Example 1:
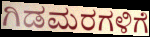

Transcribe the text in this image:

ಗಿಡಮರಗಳಿಗೆ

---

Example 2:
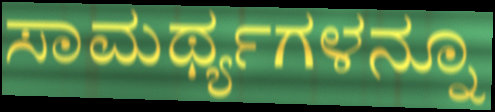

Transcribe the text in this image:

ಸಾಮರ್ಥ್ಯಗಳನ್ನೂ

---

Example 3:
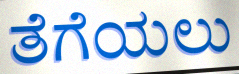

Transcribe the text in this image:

ತೆಗೆಯಲು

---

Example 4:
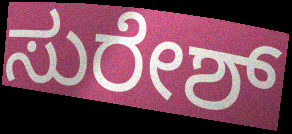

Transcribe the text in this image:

ಸುರೇಶ್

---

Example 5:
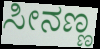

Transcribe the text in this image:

ಸೀನಣ್ಣ